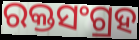
ରକ୍ତସଂଗ୍ରହ